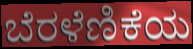
ಬೆರಳೆಣಿಕೆಯ